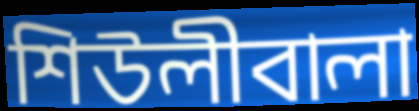
শিউলীবালা